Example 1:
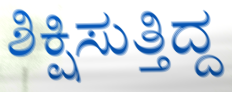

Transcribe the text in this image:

ಶಿಕ್ಷಿಸುತ್ತಿದ್ದ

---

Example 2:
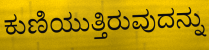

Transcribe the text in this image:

ಕುಣಿಯುತ್ತಿರುವುದನ್ನು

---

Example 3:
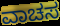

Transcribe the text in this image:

ವಾಚಸ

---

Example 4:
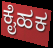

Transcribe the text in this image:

ಕೈಹಕ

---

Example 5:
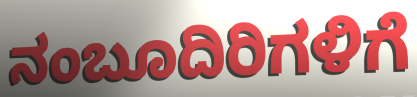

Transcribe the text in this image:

ನಂಬೂದಿರಿಗಳಿಗೆ